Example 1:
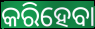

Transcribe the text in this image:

କରିହେବା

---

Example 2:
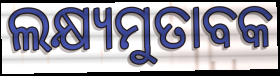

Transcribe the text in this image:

ଲକ୍ଷ୍ୟମୁତାବକ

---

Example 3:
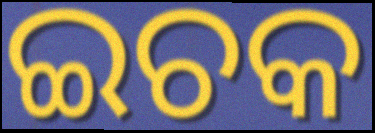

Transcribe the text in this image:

ଇଚକ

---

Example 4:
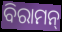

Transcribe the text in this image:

ବିରାମନ୍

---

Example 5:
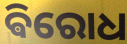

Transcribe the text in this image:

ଵିରୋଧ